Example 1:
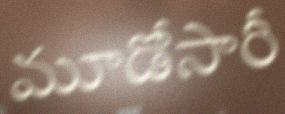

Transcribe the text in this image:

మూడోసారీ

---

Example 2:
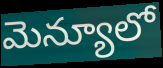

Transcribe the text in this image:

మెన్యూలో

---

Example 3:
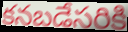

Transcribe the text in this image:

కనబడేసరికి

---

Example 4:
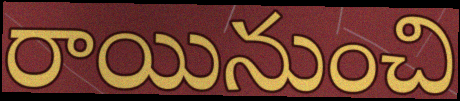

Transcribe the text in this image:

రాయినుంచి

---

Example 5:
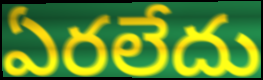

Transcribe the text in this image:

ఏరలేదు